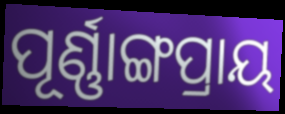
ପୂର୍ଣ୍ଣାଙ୍ଗପ୍ରାୟ